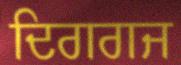
ਦਿਗਗਜ